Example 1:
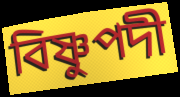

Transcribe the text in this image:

বিষ্ণুপদী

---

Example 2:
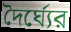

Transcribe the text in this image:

দৈর্ঘ্যের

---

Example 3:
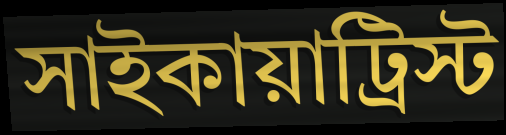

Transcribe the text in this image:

সাইকায়াট্রিস্ট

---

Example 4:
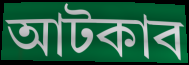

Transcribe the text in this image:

আটকাব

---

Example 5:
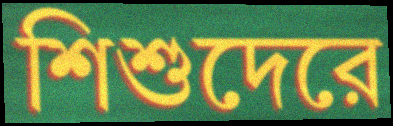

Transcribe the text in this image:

শিশুদেরে